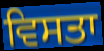
ਵਿਸਤਾ